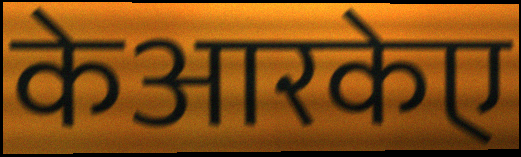
केआरकेए